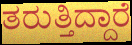
ತರುತ್ತಿದ್ದಾರೆ